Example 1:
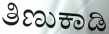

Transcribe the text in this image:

ತಿಣುಕಾಡಿ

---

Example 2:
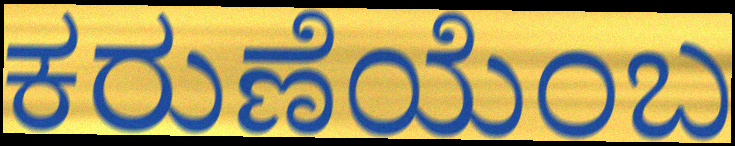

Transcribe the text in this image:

ಕರುಣೆಯೆಂಬ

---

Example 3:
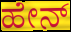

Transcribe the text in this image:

ಹೇನ್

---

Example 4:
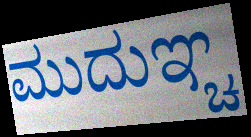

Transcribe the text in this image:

ಮುದುಞ್ಚ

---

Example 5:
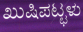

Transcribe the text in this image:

ಖುಷಿಪಟ್ಟಳು